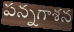
పన్నగాశన